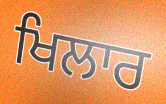
ਖਿਲਾਰ